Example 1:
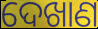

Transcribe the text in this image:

ଦେଖାଣ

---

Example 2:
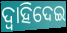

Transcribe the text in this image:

ଦ୍ବାହିଦେଇ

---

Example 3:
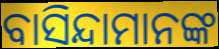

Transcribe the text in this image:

ବାସିନ୍ଦାମାନଙ୍କ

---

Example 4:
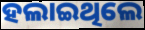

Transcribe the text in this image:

ହଲାଇଥିଲେ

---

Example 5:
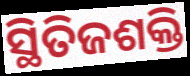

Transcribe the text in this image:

ସ୍ଥିତିଜଶକ୍ତି